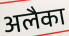
अलैका